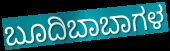
ಬೂದಿಬಾಬಾಗಳ